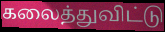
கலைத்துவிட்டு